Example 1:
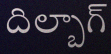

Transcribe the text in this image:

దిల్బాగ్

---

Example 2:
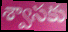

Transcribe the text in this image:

శ్వాసకు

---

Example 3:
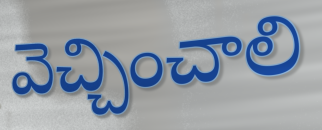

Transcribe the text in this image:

వెచ్చించాలి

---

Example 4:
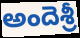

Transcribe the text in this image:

అందెశ్రీ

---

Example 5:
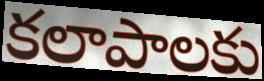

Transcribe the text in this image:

కలాపాలకు